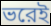
ভরেই